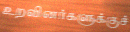
உறவினர்களுக்குச்